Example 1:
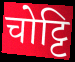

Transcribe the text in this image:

चोट्टि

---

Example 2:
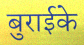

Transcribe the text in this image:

बुराईके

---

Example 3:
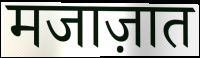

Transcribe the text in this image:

मजाज़ात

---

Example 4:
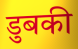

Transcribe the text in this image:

डुबकी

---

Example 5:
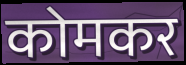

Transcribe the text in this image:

कोमकर